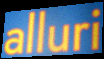
alluri